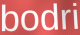
bodri